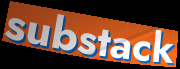
substack